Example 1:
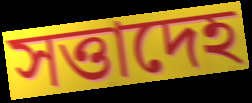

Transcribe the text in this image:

সত্তাদেহ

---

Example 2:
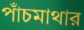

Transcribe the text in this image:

পাঁচমাথার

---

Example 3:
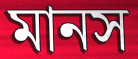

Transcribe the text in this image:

মানস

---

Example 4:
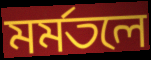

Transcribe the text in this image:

মর্মতলে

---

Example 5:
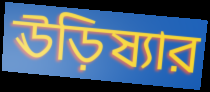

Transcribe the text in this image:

ঊড়িষ্যার